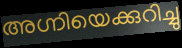
അഗ്നിയെക്കുറിച്ചു